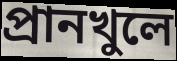
প্রানখুলে